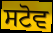
ਸਟੋਵ